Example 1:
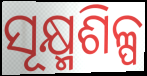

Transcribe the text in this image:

ସୂକ୍ଷ୍ମଶିଳ୍ପ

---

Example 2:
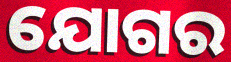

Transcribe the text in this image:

ଯୋଗର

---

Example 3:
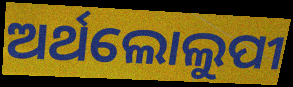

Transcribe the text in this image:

ଅର୍ଥଲୋଲୁପୀ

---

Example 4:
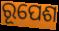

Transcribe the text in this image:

ରୂପେଶ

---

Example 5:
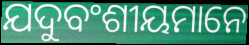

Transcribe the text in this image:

ଯଦୁବଂଶୀୟମାନେ